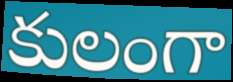
కులంగా